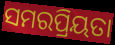
ସମରପ୍ରିୟତା